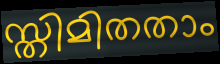
സ്തിമിതതാം